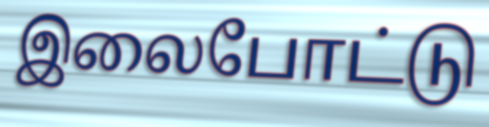
இலைபோட்டு